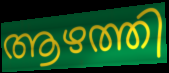
ആഴത്തി